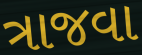
ત્રાજવા